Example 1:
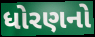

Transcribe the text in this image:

ધોરણનો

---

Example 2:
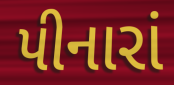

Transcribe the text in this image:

પીનારાં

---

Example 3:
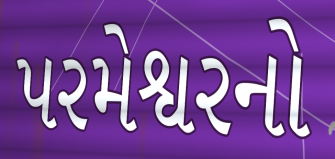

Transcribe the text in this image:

પરમેશ્વરનો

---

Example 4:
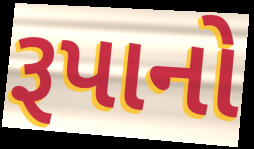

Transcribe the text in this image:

રૂપાનો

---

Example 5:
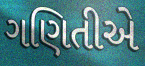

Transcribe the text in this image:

ગણિતીએ